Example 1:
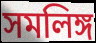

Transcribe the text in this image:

সমলিঙ্গ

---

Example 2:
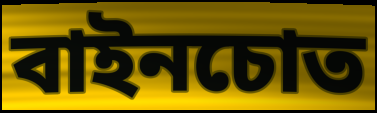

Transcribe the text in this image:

বাইনচোত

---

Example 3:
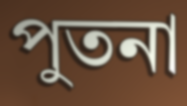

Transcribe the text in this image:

পুতনা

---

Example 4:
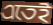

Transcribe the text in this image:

এতেই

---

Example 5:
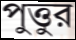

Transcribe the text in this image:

পুত্তুর